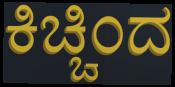
ಕಿಚ್ಚಿಂದ